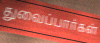
துவைப்பார்கள்